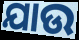
ଯାଉ